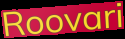
Roovari